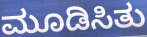
ಮೂಡಿಸಿತು